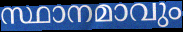
സ്ഥാനമാവും